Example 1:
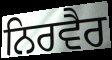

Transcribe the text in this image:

ਨਿਰਵੈਰ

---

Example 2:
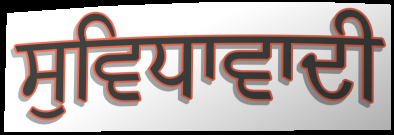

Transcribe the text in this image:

ਸੁਵਿਧਾਵਾਦੀ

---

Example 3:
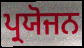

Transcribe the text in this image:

ਪ੍ਰਯੋਜਨ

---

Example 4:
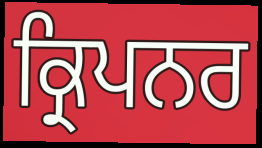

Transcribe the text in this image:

ਕ੍ਰਿਪਨਰ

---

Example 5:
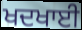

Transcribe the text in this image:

ਖਦਖਾਈ